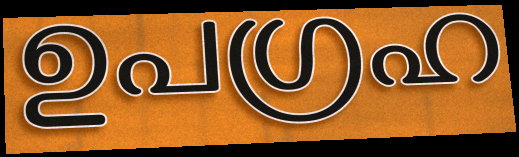
ഉപഗ്രഹ